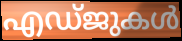
എഡ്ജുകൾ